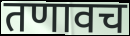
तणावच